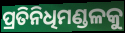
ପ୍ରତିନିଧିମଣ୍ଡଳକୁ